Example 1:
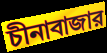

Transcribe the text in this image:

চীনাবাজার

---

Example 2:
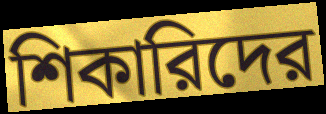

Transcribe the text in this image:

শিকারিদের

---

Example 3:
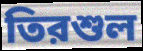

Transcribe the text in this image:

তিরশুল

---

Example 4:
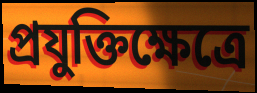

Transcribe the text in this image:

প্রযুক্তিক্ষেত্রে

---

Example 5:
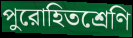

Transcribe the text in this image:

পুরোহিতশ্রেণি